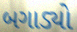
બગાડ્યો